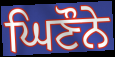
ਘਿਣੌਨੇ